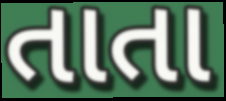
તાતા